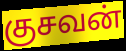
குசவன்